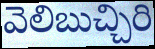
వెలిబుచ్చిరి